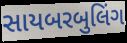
સાયબરબુલિંગ